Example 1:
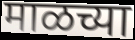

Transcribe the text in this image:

माळच्या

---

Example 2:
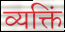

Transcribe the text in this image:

व्यक्तिं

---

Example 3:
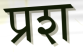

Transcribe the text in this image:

प्रश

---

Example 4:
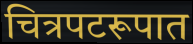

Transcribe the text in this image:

चित्रपटरूपात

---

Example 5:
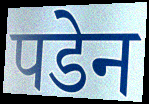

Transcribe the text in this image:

पडेन